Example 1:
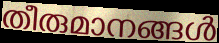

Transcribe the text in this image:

തീരുമാനങ്ങൾ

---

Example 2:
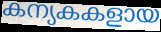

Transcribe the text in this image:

കന്യകകളായ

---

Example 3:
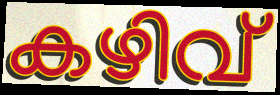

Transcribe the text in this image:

കഴിവ്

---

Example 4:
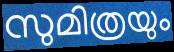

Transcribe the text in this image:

സുമിത്രയും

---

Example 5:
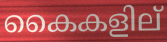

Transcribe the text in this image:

കൈകളില്